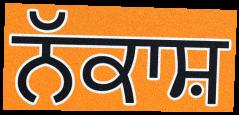
ਨੱਕਾਸ਼